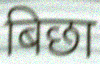
बिछा